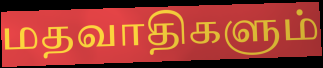
மதவாதிகளும்